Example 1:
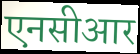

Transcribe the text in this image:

एनसीआर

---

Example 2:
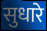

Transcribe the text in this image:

सुधारे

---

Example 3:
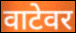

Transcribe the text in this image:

वाटेवर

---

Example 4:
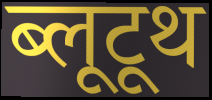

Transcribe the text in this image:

ब्लूटूथ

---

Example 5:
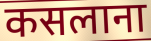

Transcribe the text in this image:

कसलाना